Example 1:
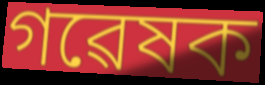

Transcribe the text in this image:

গৱেষক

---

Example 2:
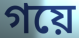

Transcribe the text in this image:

গয়ে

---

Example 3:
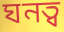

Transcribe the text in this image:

ঘনত্ব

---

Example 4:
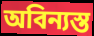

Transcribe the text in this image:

অবিন্যস্ত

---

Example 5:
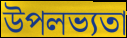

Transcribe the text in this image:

উপলভ্যতা